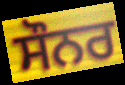
ਸੌਨਰ